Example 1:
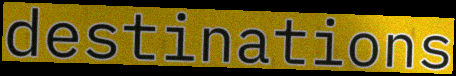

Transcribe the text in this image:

destinations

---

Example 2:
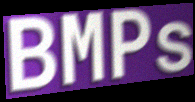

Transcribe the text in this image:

BMPs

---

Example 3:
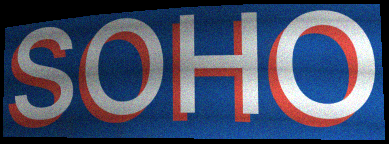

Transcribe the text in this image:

SOHO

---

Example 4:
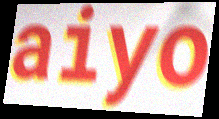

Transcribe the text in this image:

aiyo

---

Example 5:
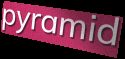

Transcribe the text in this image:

pyramid